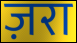
ज़रा